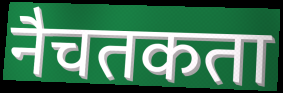
नैचतकता